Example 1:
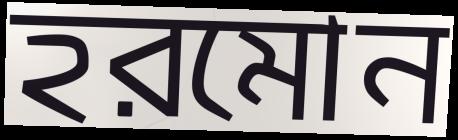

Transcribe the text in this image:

হরমোন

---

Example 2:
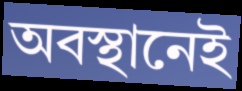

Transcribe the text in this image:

অবস্থানেই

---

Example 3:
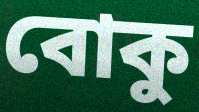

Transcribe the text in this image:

বোকু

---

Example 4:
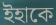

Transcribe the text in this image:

ইহাকে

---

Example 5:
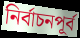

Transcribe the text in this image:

নির্বাচনপূর্ব